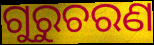
ଗୁରୁଚରଣ